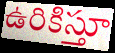
ఉరికిస్తూ